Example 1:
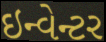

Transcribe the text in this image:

ઇન્વેન્ટર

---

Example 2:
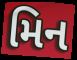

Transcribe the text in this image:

મિન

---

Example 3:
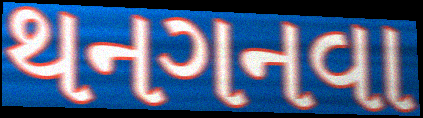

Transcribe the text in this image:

થનગનવા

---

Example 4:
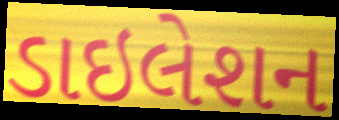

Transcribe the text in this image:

ડાઇલેશન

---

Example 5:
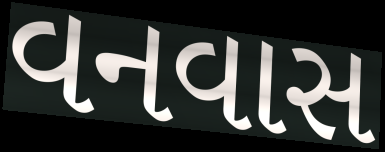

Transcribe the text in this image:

વનવાસ